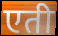
एती